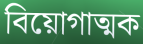
বিয়োগাত্মক